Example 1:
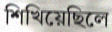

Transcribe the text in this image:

শিখিয়েছিলে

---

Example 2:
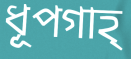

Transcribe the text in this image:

ধূপগাহ্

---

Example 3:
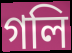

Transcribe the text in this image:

গলি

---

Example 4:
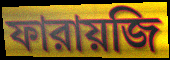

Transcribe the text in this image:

ফারায়জি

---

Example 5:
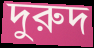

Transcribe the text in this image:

দুরুদ